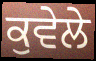
ਕੁਵੇਲੇ